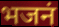
भजनं